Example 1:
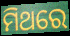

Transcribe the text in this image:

ମିଥରେ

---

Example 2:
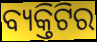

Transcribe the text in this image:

ବ୍ୟକ୍ତିଟିର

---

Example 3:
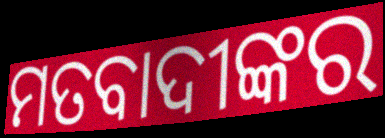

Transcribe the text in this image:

ମତବାଦୀଙ୍କର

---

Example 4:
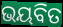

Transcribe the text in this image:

ଭୟବିତ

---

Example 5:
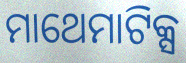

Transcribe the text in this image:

ମାଥେମାଟିକ୍ସ